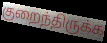
குறைந்திருக்க